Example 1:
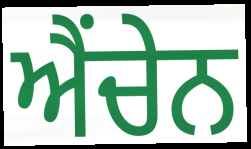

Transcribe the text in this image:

ਐਂਚੇਨ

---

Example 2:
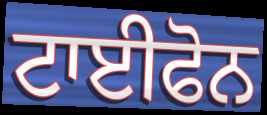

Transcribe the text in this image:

ਟਾਈਫੋਨ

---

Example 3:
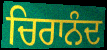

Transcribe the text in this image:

ਚਿਰਾਨੰਦ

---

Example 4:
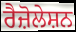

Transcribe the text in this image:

ਰੈਜ਼ੋਲੇਸ਼ਨ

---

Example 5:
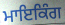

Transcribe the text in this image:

ਮਾਇਕਿੰਗ